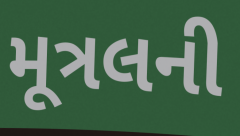
મૂત્રલની